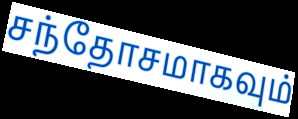
சந்தோசமாகவும்